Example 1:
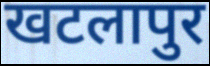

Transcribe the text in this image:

खटलापुर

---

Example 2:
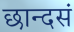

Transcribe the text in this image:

छान्दसं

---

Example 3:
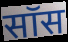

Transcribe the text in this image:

सॉस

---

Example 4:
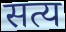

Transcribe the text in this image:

सत्य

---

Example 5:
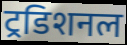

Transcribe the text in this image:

ट्रडिशनल